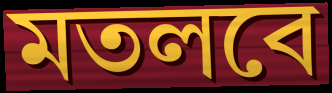
মতলবে